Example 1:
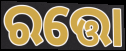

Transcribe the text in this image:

ରତ୍ତୋ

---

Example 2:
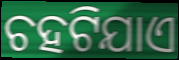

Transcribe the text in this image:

ଚହଟିଯାଏ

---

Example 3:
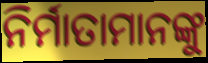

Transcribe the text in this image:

ନିର୍ମାତାମାନଙ୍କୁ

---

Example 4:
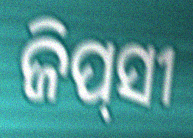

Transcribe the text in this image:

ଜିପ୍‍ସୀ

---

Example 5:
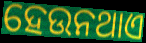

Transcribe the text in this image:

ହେଉନଥାଏ